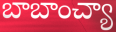
బాబాంచ్యా